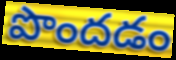
పొందడం